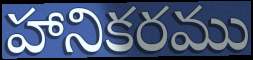
హానికరము